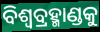
ବିଶ୍ବବ୍ରହ୍ମାଣ୍ଡକୁ